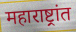
महाराष्ट्रांत